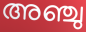
അഞ്ചു